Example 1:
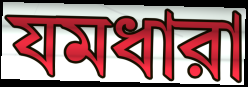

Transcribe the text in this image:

যমধারা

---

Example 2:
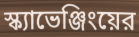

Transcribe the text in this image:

স্ক্যাভেঞ্জিংয়ের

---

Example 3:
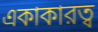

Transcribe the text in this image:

একাকারত্ব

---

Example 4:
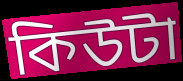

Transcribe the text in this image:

কিউটা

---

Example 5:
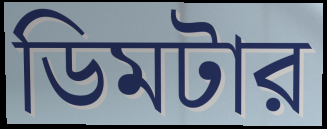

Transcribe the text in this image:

ডিমটার